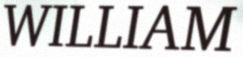
WILLIAM